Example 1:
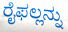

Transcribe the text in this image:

ರೈಫಲ್ಲನ್ನು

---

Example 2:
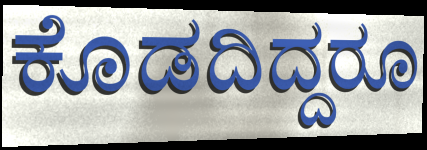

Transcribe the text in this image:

ಕೊಡದಿದ್ದರೂ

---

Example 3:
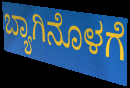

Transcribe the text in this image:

ಬ್ಯಾಗಿನೊಳಗೆ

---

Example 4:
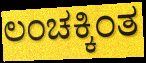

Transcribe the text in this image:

ಲಂಚಕ್ಕಿಂತ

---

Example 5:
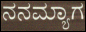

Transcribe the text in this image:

ನನಮ್ಯಾಗ